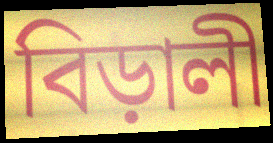
বিড়ালী